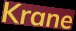
Krane